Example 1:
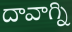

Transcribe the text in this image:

దావాగ్ని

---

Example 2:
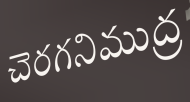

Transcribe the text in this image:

చెరగనిముద్ర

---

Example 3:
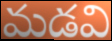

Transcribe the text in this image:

మడవి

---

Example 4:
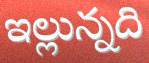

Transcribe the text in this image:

ఇల్లున్నది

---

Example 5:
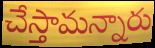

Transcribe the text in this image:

చేస్తామన్నారు